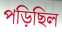
পড়িছিল